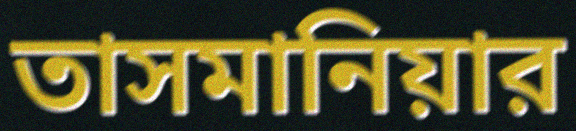
তাসমানিয়ার